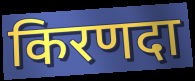
किरणदा